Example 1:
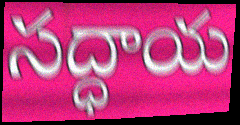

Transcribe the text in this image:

సద్ధాయ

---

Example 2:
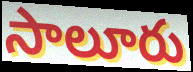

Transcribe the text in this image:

సాలూరు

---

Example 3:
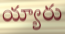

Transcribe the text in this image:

య్యారు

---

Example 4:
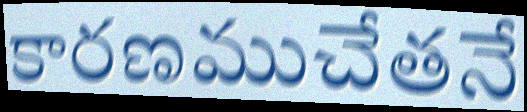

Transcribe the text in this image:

కారణముచేతనే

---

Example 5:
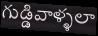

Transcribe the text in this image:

గుడ్డివాళ్ళలా